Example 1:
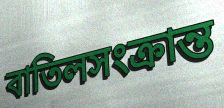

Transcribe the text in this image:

বাতিলসংক্রান্ত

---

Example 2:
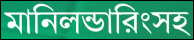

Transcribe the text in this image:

মানিলন্ডারিংসহ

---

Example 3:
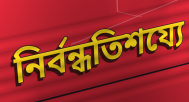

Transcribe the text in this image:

নির্বন্ধতিশয্যে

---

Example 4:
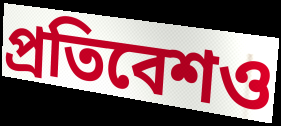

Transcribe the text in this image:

প্রতিবেশও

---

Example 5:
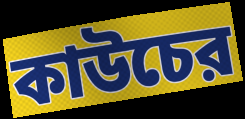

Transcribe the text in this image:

কাউচের